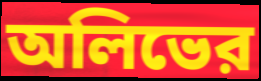
অলিভের